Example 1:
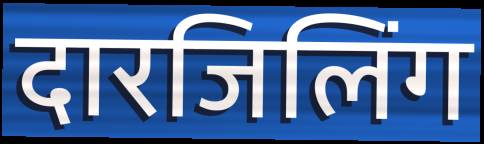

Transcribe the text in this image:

दारजिलिंग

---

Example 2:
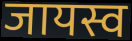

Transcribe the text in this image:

जायस्व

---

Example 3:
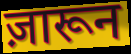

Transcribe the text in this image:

ज़ारून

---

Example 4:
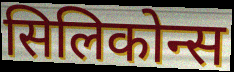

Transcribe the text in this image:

सिलिकोन्स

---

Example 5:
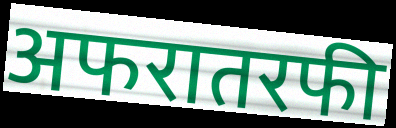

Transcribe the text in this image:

अफरातरफी